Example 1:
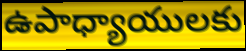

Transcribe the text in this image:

ఉపాధ్యాయులకు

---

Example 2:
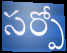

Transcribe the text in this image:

సర్పో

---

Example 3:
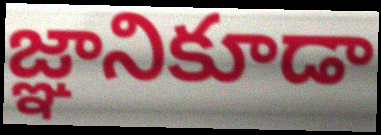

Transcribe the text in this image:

జ్ఞానికూడా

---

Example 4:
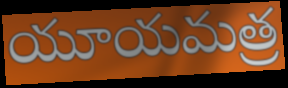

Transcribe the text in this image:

యూయమత్ర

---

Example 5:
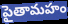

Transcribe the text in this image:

పైతామహం